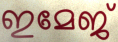
ഇമേജ്